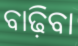
ବାଢ଼ିବା